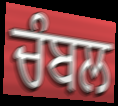
ਚੰਬਲ